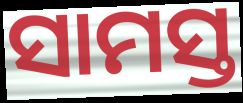
ସାମସ୍ତ